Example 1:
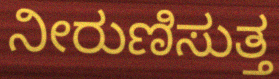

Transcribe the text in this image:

ನೀರುಣಿಸುತ್ತ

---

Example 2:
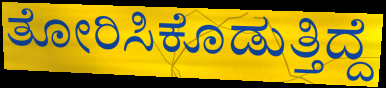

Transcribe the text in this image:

ತೋರಿಸಿಕೊಡುತ್ತಿದ್ದೆ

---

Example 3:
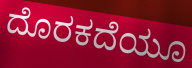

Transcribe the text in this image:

ದೊರಕದೆಯೂ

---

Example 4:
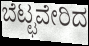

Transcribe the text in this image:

ಬೆಟ್ಟವೇರಿದ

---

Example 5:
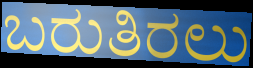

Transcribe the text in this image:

ಬರುತಿರಲು